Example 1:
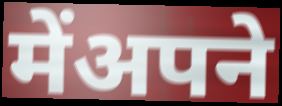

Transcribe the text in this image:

मेंअपने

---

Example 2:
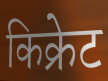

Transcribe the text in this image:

किक्रेट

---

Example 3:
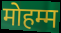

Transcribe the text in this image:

मोहम्म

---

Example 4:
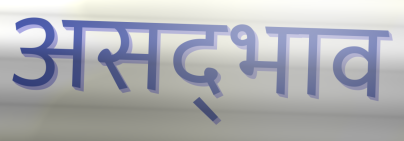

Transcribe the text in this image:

असद्भाव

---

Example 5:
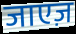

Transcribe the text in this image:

जाएज़